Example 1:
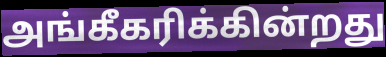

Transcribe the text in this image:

அங்கீகரிக்கின்றது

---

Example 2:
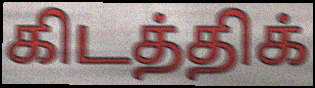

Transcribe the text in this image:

கிடத்திக்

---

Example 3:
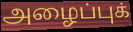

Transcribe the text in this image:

அழைப்புக்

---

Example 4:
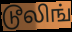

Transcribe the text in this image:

டூலிங்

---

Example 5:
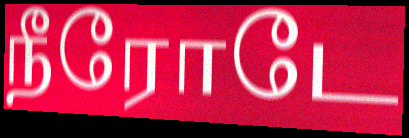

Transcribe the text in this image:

நீரோடே